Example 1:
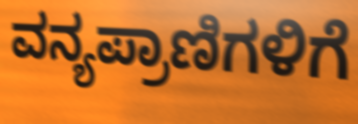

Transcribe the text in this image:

ವನ್ಯಪ್ರಾಣಿಗಳಿಗೆ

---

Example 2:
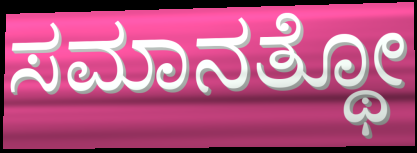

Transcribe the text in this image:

ಸಮಾನತ್ಥೋ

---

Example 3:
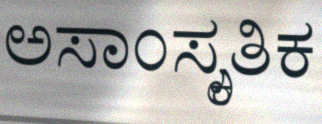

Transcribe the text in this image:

ಅಸಾಂಸ್ಕೃತಿಕ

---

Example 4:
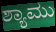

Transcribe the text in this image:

ಶ್ಯಾಮು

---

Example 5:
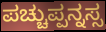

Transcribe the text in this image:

ಪಚ್ಚುಪ್ಪನ್ನಸ್ಸ